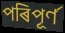
পৰিপূৰ্ণ